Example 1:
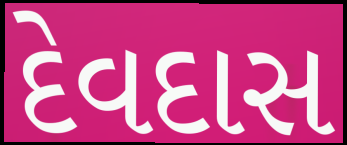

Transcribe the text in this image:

દેવદાસ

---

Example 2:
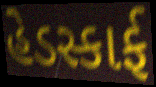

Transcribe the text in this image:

હેડસ્કાર્ફ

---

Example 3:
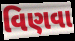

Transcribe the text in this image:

વિણવા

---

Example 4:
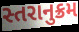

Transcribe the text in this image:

સ્તરાનુક્રમ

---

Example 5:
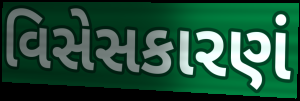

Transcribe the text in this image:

વિસેસકારણં